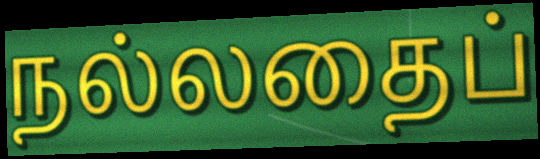
நல்லதைப்